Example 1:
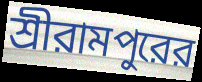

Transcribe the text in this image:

শ্রীরামপুরের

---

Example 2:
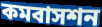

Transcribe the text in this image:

কমবাসশন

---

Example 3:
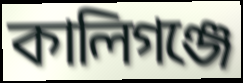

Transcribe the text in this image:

কালিগঞ্জে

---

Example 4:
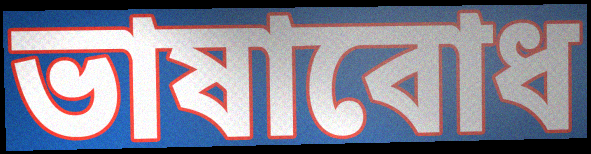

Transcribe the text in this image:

ভাষাবোধ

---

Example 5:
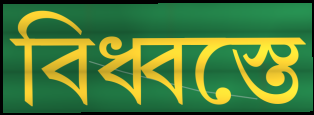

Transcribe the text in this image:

বিধ্বস্তে